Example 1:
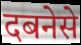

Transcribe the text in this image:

दबनेसे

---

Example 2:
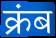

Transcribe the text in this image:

क्रंब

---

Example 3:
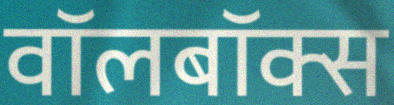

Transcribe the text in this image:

वॉलबॉक्स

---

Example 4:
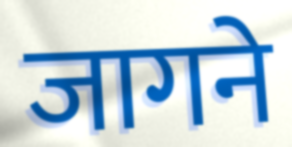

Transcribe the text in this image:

जागने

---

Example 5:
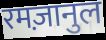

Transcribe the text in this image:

रमज़ानुल